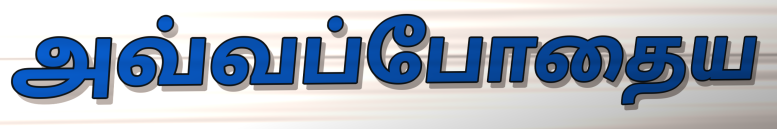
அவ்வப்போதைய